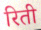
रिती